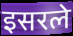
इसरले